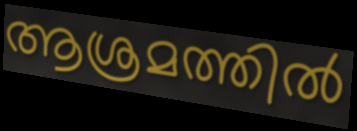
ആശ്രമത്തിൽ